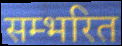
सम्भरित